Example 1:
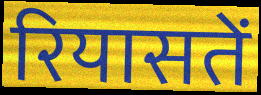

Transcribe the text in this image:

रियासतें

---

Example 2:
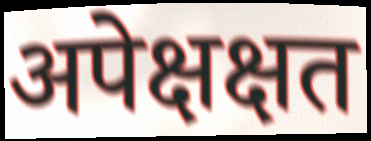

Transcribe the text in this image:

अपेक्षक्षत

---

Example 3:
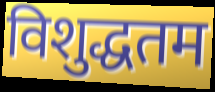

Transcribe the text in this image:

विशुद्धतम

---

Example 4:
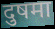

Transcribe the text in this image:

दुषमा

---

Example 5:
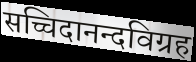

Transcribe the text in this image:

सच्चिदानन्दविग्रह